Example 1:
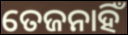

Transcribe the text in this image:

ତେଜନାହିଁ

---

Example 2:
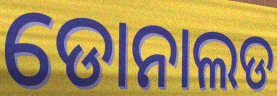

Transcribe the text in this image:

ଡୋନାଲଡ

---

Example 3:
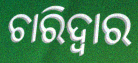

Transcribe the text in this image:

ଚାରିଦ୍ୱାର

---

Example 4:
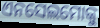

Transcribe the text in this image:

ଏନସେଲମୋକୁ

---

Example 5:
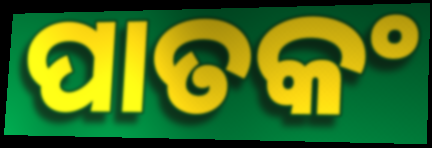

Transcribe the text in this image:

ପାତକଂ